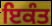
ਇਕੰਤ